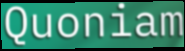
Quoniam